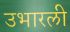
उभारली